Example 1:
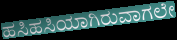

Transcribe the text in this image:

ಹಸಿಹಸಿಯಾಗಿರುವಾಗಲೇ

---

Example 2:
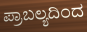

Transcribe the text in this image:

ಪ್ರಾಬಲ್ಯದಿಂದ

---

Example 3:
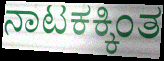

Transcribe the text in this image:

ನಾಟಕಕ್ಕಿಂತ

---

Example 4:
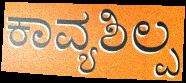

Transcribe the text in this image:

ಕಾವ್ಯಶಿಲ್ಪ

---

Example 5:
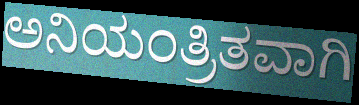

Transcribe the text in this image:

ಅನಿಯಂತ್ರಿತವಾಗಿ